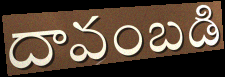
దావంబడి